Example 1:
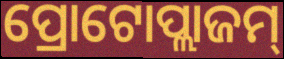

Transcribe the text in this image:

ପ୍ରୋଟୋପ୍ଲାଜମ୍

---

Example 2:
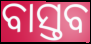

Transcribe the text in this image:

ବାସ୍ତବ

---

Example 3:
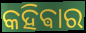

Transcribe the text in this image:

କହିଵାର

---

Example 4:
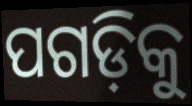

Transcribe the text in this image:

ପଗଡ଼ିକୁ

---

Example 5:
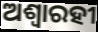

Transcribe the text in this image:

ଅଶ୍ୱାରହୀ